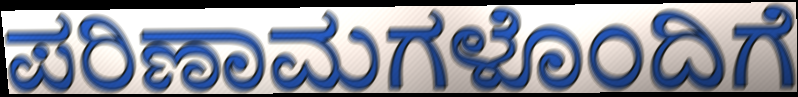
ಪರಿಣಾಮಗಳೊಂದಿಗೆ